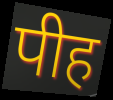
पीह